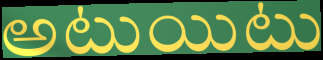
అటుయిటు